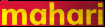
mahari